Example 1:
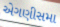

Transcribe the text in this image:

એગણીસમા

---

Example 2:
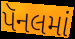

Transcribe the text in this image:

પૅનલમાં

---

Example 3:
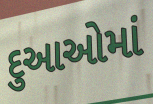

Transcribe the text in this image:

દુઆઓમાં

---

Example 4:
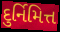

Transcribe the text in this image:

દુર્નિમિત્ત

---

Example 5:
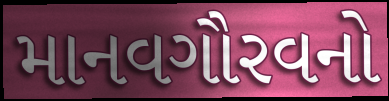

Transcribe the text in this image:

માનવગૌરવનો